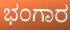
ಭಂಗಾರ